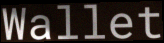
Wallet